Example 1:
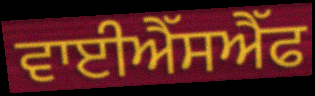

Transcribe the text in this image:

ਵਾਈਐੱਸਐੱਫ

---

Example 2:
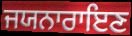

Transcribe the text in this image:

ਜਯਨਾਰਾਇਣ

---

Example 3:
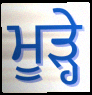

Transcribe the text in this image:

ਮੂੜ੍ਹੇ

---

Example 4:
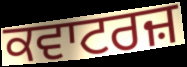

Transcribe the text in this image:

ਕਵਾਟਰਜ਼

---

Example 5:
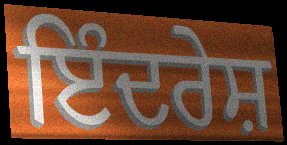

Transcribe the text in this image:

ਇੰਦਰੇਸ਼